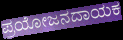
ಪ್ರಯೋಜನದಾಯಕ